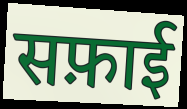
सफ़ाई